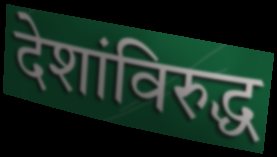
देशांविरुद्ध